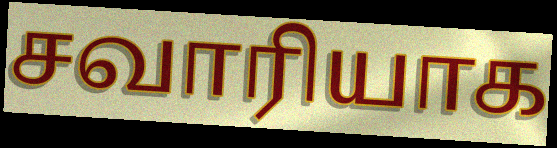
சவாரியாக